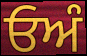
ਓਅੰ